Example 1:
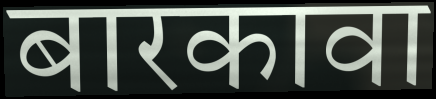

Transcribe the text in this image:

बारकावा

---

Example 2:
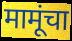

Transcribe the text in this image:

मामूंचा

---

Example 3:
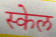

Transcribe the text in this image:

स्केल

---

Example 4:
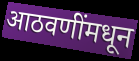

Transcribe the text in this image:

आठवणींमधून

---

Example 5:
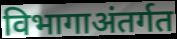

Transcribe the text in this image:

विभागाअंतर्गत